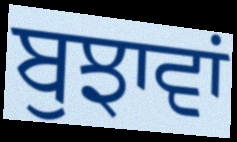
ਬੁਝਾਵਾਂ